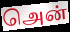
அென்